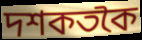
দশকতকৈ